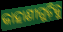
କାହାଣୀଗୁଡ଼ିକୁ